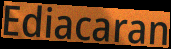
Ediacaran